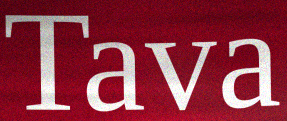
Tava